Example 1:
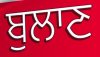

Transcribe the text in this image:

ਬੁਲਾਣ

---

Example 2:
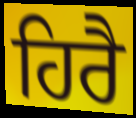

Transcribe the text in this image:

ਹਿਰੈ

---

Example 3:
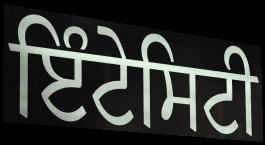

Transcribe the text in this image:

ਇੰਟੇਸਿਟੀ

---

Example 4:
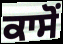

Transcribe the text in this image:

ਕਾਸੋਂ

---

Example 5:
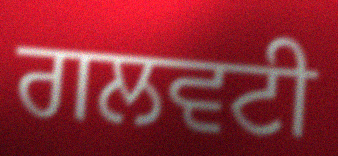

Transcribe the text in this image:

ਗਲਵਟੀ